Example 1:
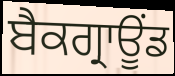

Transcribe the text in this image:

ਬੈਕਗ੍ਰਾਊਂਡ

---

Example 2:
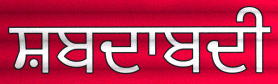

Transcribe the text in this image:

ਸ਼ਬਦਾਬਦੀ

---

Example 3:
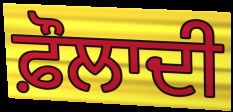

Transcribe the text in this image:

ਫ਼ੌਲਾਦੀ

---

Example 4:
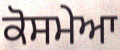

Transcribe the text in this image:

ਕੋਸਮੇਆ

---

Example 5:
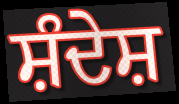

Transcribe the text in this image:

ਸ਼ੰਦੇਸ਼